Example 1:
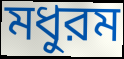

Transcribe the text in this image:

মধুরম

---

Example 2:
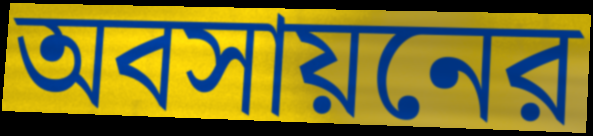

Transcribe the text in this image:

অবসায়নের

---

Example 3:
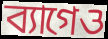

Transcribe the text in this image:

ব্যাগেও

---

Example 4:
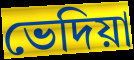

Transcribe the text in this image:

ভেদিয়া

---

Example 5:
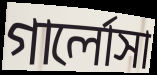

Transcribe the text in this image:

গার্লোসা